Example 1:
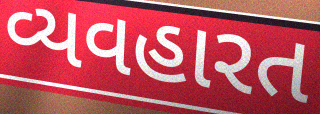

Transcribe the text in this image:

વ્યવહારત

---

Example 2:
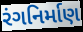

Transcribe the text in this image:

રંગનિર્માણ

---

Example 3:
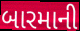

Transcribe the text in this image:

બારમાની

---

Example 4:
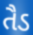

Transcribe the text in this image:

તૈડ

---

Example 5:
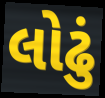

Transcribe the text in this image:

લોઢું